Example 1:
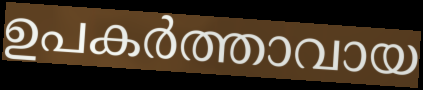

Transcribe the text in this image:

ഉപകർത്താവായ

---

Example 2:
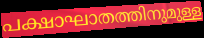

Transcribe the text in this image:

പക്ഷാഘാതത്തിനുമുള്ള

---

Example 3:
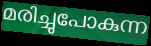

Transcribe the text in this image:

മരിച്ചുപോകുന്ന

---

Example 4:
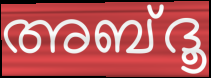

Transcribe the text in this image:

അബ്ദൂ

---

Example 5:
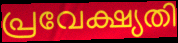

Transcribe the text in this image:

പ്രവേക്ഷ്യതി